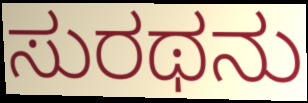
ಸುರಥನು